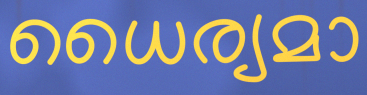
ധൈര്യമാ